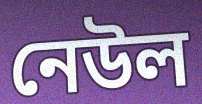
নেউল